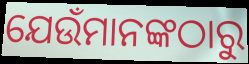
ଯେଉଁମାନଙ୍କଠାରୁ